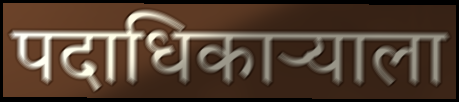
पदाधिकाऱ्याला